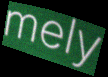
mely